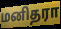
மனிதரா